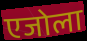
एजोला